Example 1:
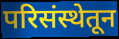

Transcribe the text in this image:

परिसंस्थेतून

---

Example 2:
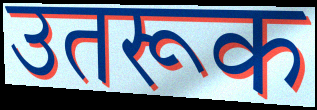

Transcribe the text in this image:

उतरूक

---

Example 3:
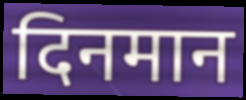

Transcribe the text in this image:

दिनमान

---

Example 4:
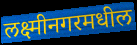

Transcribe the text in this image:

लक्ष्मीनगरमधील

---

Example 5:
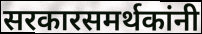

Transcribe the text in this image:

सरकारसमर्थकांनी